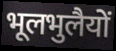
भूलभुलैयों